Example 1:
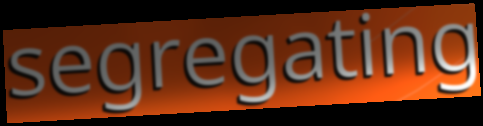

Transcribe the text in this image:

segregating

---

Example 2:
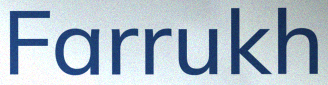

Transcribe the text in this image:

Farrukh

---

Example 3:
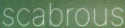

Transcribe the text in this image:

scabrous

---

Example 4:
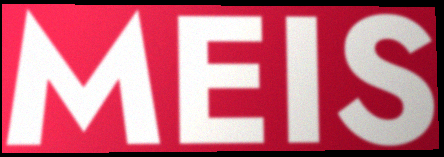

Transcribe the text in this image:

MEIS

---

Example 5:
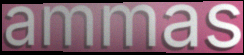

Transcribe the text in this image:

ammas